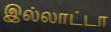
இல்லாட்டா